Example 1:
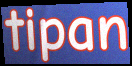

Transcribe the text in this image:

tipan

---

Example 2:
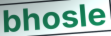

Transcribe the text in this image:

bhosle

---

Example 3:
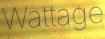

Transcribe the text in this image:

Wattage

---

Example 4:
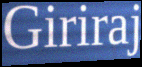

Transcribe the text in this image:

Giriraj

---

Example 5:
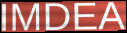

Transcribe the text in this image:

IMDEA